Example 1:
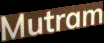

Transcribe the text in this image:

Mutram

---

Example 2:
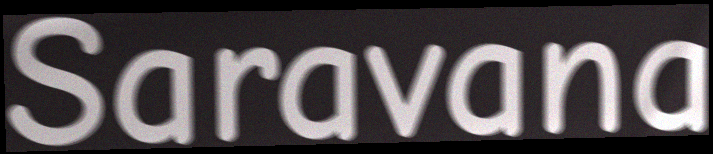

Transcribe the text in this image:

Saravana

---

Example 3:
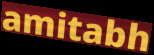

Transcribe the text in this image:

amitabh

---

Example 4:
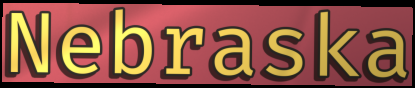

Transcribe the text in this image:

Nebraska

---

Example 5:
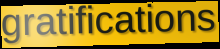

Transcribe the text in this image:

gratifications